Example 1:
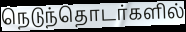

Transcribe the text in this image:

நெடுந்தொடர்களில்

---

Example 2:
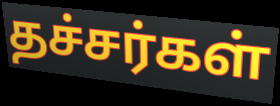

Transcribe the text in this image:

தச்சர்கள்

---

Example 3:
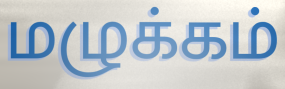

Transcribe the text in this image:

மழுக்கம்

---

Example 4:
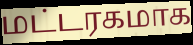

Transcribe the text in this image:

மட்டரகமாக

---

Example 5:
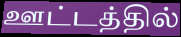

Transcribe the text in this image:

ஊட்டத்தில்